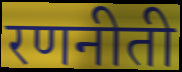
रणनीती